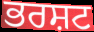
ਭਰਸ਼ਟ